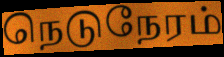
நெடுநேரம்